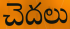
చెదలు